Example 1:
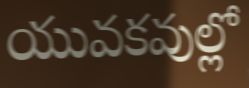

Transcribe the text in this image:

యువకవుల్లో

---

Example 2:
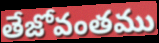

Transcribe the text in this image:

తేజోవంతము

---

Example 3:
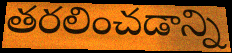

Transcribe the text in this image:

తరలించడాన్ని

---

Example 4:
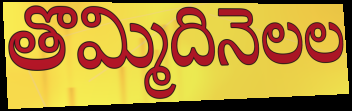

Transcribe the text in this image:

తొమ్మిదినెలల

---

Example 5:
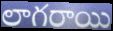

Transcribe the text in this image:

లాగరాయి